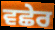
ਵਛੇਰ